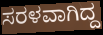
ಸರಳವಾಗಿದ್ದ